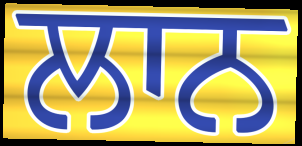
ਲਾਨ